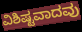
ವಿಶಿಷ್ಟವಾದವು